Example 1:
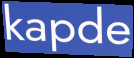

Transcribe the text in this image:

kapde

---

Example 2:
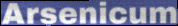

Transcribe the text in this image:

Arsenicum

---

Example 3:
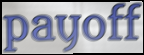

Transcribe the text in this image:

payoff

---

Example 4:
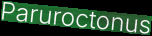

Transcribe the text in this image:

Paruroctonus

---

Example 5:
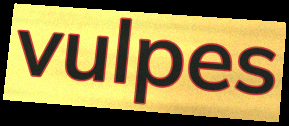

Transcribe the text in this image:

vulpes